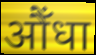
औँधा